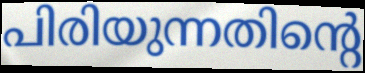
പിരിയുന്നതിന്റെ